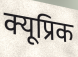
क्यूप्रिक